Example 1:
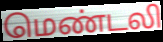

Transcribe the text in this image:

மெண்டலி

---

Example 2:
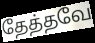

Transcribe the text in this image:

தேத்தவே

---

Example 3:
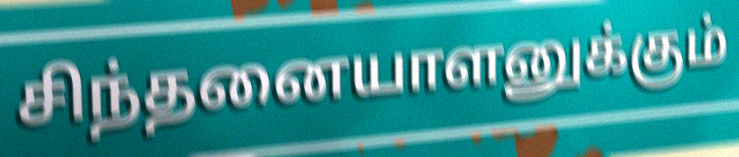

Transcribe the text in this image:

சிந்தனையாளனுக்கும்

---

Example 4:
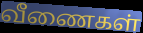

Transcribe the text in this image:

வீணைகள்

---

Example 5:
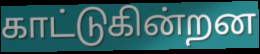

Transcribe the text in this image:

காட்டுகின்றன